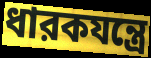
ধারকযন্ত্রে